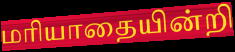
மரியாதையின்றி